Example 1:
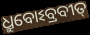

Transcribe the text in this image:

ଧ୍ରୁବୋଽବ୍ରବୀତ୍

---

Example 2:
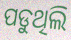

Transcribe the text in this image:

ପଡୁଥିଲି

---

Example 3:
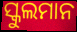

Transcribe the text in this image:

ସ୍କୁଲମାନ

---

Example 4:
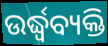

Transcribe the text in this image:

ଉର୍ଦ୍ଧ୍ୱବ୍ୟକ୍ତି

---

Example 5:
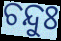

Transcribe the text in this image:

ଚନ୍ଦୁଃ